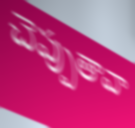
చెప్పుతావా